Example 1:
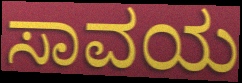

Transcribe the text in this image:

ಸಾವಯ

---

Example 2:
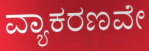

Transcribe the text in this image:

ವ್ಯಾಕರಣವೇ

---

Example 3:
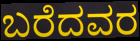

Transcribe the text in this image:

ಬರೆದವರ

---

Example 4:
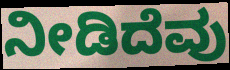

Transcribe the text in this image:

ನೀಡಿದೆವು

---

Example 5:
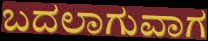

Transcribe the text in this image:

ಬದಲಾಗುವಾಗ